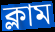
ক্লাম